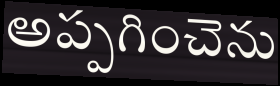
అప్పగించెను